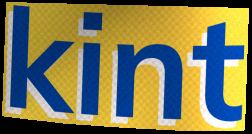
kint